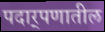
पदार्पणातील